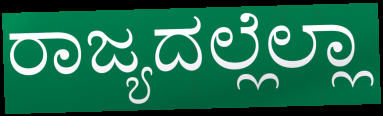
ರಾಜ್ಯದಲ್ಲೆಲ್ಲಾ